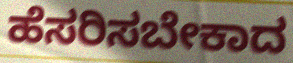
ಹೆಸರಿಸಬೇಕಾದ